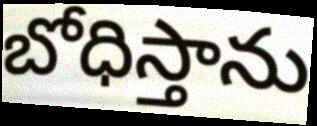
బోధిస్తాను